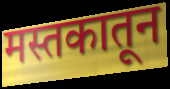
मस्तकातून